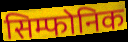
सिम्फोनिक